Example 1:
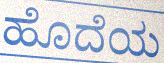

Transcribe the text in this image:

ಹೊದೆಯ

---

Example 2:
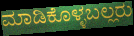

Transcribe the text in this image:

ಮಾಡಿಕೊಳ್ಳಬಲ್ಲರು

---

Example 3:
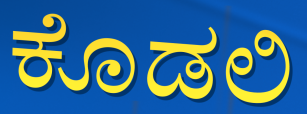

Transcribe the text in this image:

ಕೊಡಲಿ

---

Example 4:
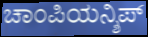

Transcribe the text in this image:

ಚಾಂಪಿಯನ್ಶಿಪ್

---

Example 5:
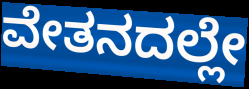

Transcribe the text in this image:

ವೇತನದಲ್ಲೇ